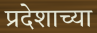
प्रदेशाच्या